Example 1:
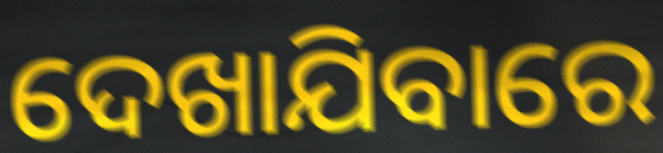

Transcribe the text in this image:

ଦେଖାଯିବାରେ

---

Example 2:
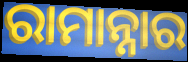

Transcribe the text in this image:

ରାମାନ୍ନାର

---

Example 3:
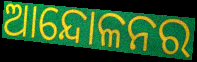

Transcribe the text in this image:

ଆନ୍ଦୋଳନର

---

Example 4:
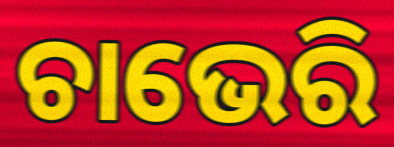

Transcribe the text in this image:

ଚାଭେରି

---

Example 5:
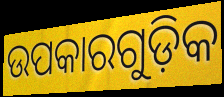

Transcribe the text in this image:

ଉପକାରଗୁଡ଼ିକ